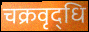
चक्रवृद्धि